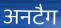
अनटैग